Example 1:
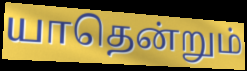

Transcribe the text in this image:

யாதென்றும்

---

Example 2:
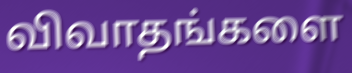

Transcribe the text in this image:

விவாதங்களை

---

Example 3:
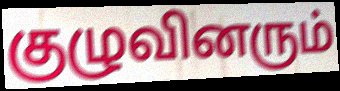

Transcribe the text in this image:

குழுவினரும்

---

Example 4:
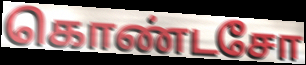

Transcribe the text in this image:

கொண்டசோ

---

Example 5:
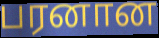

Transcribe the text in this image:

பரனான